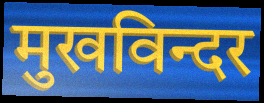
मुखविन्दर